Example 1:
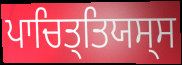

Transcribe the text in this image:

ਪਾਚਿਤ੍ਤਿਯਸ੍ਸ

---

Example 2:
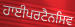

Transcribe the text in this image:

ਹਾਈਪਰਟੈਨਸਿਵ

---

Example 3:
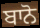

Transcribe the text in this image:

ਬਾਨੋ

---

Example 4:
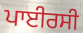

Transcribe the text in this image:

ਪਾਈਰਸੀ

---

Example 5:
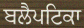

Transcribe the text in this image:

ਬਲੈਪਟਿਕਾ